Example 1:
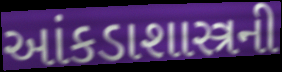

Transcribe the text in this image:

આંકડાશાસ્ત્રની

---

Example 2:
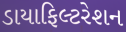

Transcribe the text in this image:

ડાયાફિલ્ટરેશન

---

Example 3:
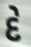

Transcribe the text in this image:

દે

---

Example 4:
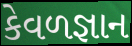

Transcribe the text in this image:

કેવળજ્ઞાન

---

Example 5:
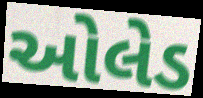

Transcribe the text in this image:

ઓલેડ